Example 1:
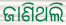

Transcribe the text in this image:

ଜାଣିଥଲି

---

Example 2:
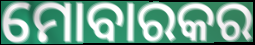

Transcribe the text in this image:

ମୋବାରକର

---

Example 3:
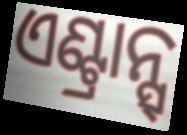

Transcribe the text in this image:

ଏଣ୍ଟ୍ରାନ୍ସ୍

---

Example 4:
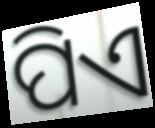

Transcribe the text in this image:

ପିଏ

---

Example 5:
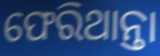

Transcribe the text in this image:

ଫେରିଥାନ୍ତା